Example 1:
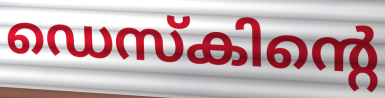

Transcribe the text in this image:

ഡെസ്കിന്റെ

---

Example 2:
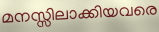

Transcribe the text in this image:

മനസ്സിലാക്കിയവരെ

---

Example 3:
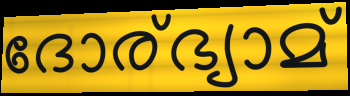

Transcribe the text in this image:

ദോര്ഭ്യാമ്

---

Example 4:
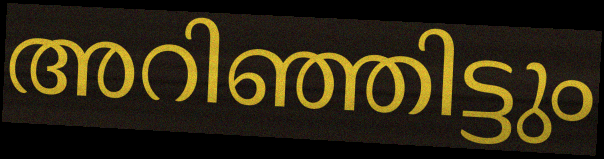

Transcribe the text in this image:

അറിഞ്ഞിട്ടും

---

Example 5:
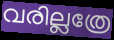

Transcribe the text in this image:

വരില്ലത്രേ